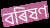
বৰিষণ